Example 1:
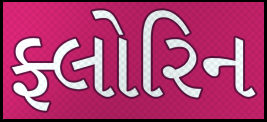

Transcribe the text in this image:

ફ્લોરિન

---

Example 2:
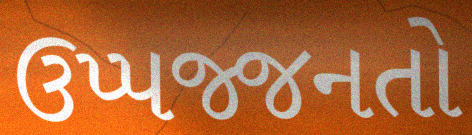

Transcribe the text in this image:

ઉપ્પજ્જનતો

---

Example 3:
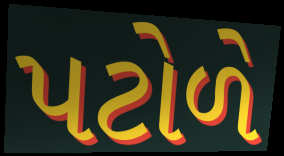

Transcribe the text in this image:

પટોળે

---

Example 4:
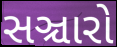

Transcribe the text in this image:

સઞ્ચારો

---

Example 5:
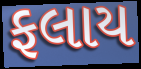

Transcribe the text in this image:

ફલાય